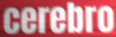
cerebro